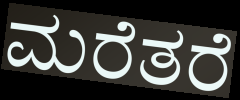
ಮರೆತರೆ